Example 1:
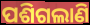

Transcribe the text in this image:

ପଶିଗଲାଣି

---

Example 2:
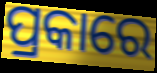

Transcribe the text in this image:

ପ୍ରକାରେ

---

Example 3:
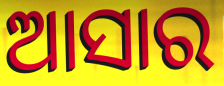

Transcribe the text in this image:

ଆସାର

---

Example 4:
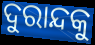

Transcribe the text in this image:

ଦୁରାନ୍ଦକୁ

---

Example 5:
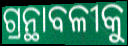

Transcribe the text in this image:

ଗ୍ରନ୍ଥାବଳୀକୁ